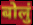
बोलुं